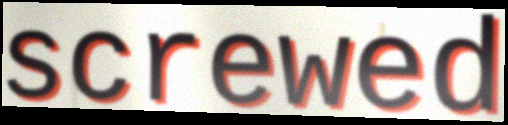
screwed